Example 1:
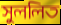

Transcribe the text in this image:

সুললিত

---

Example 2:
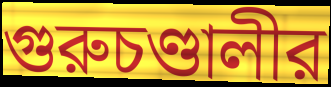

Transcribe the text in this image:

গুরুচণ্ডালীর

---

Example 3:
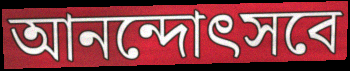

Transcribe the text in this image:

আনন্দোৎসবে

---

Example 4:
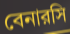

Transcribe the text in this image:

বেনারসি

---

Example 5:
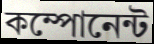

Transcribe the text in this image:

কম্পোনেন্ট